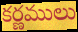
కర్ణములు